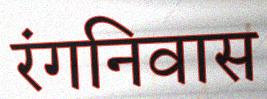
रंगनिवास